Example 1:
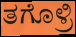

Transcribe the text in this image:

ತಗೊಳ್ರಿ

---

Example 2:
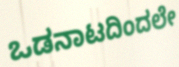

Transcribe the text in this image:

ಒಡನಾಟದಿಂದಲೇ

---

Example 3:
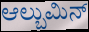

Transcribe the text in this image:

ಆಲ್ಬುಮಿನ್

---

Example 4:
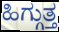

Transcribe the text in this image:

ಹಿಗ್ಗುತ್ತ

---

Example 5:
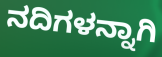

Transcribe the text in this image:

ನದಿಗಳನ್ನಾಗಿ